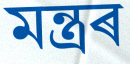
মন্ত্ৰৰ